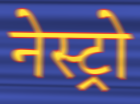
नेस्ट्रो